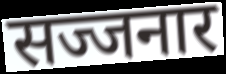
सज्जनार